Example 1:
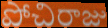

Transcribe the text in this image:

పోచిరాజు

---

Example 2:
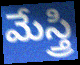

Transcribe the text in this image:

మేస్త్రి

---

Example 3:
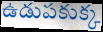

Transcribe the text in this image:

ఉడుపకుక్క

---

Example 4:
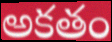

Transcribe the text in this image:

అకతం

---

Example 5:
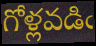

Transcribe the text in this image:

గోళ్లవడిఁ